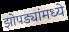
झोपड्यांमध्ये